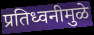
प्रतिध्वनीमुळे